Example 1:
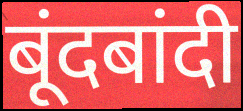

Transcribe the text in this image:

बूंदबांदी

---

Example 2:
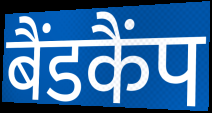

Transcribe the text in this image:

बैंडकैंप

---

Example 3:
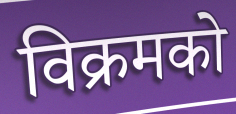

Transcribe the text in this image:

विक्रमको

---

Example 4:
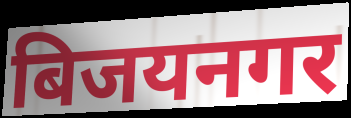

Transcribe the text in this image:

बिजयनगर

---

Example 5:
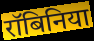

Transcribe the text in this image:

रॉबिनिया